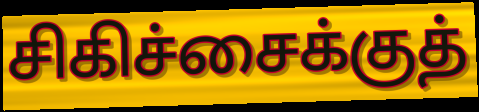
சிகிச்சைக்குத்